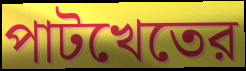
পাটখেতের